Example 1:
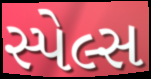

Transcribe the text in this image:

સ્પેલ્સ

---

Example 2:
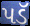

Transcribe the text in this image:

પડૅ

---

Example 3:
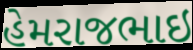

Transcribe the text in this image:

હેમરાજભાઇ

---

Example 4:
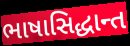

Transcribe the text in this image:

ભાષાસિદ્ધાન્ત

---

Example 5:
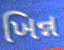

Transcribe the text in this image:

ખિન્ન